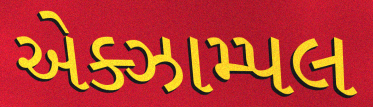
એક્ઝામ્પલ